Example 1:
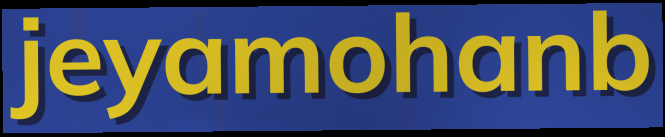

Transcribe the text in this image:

jeyamohanb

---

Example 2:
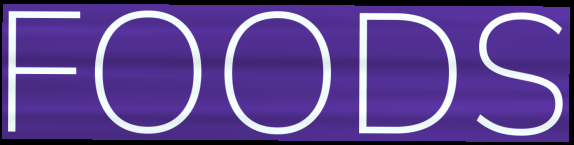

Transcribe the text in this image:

FOODS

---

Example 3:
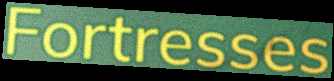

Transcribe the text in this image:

Fortresses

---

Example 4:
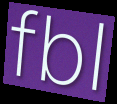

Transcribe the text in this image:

fbl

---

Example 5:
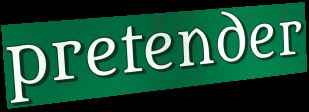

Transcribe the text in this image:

pretender